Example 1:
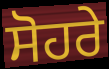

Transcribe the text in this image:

ਸੋਹਰੇ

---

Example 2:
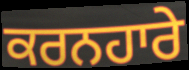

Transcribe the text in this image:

ਕਰਨਹਾਰੇ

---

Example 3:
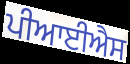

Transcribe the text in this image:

ਪੀਆਈਐਸ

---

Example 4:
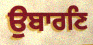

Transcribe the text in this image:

ਉਬਾਰਣਿ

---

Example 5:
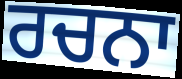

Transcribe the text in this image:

ਰਚਨਾ